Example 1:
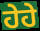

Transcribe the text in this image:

ਹੇਹੇ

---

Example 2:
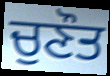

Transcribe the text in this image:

ਚੁਣੌਤ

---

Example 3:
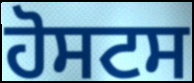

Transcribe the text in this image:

ਹੋਸਟਸ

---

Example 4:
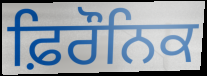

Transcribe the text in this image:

ਫ਼ਿਰੌਨਿਕ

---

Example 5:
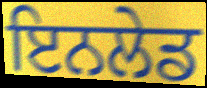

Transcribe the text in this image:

ਇਨਲੇਡ